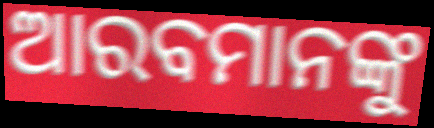
ଆରବମାନଙ୍କୁ